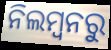
ନିଲମ୍ବନରୁ